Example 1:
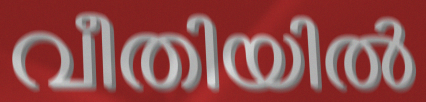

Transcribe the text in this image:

വീതിയിൽ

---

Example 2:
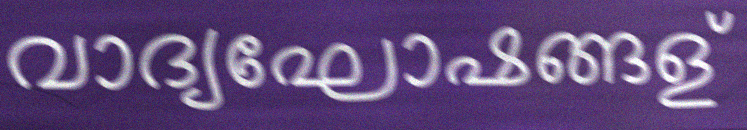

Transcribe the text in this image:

വാദ്യഘോഷങ്ങള്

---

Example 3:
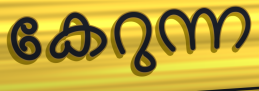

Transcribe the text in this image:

കേറുന്ന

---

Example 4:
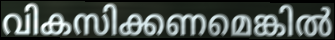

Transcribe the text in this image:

വികസിക്കണമെങ്കിൽ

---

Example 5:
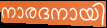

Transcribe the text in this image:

നാരദനായി